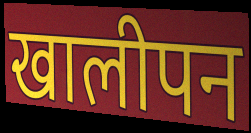
खालीपन